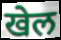
खेल